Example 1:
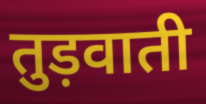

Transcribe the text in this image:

तुड़वाती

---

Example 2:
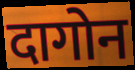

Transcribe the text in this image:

दागोन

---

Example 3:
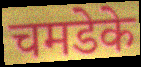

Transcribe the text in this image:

चमडेके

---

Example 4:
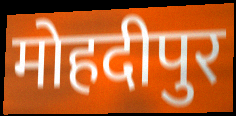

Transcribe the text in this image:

मोहदीपुर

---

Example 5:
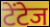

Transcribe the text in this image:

टेंटेज